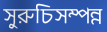
সুরুচিসম্পন্ন